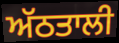
ਅੱਠਤਾਲੀ